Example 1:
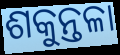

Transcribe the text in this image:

ଶକୁନ୍ତଳା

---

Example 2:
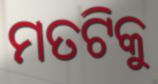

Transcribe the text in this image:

ମତଟିକୁ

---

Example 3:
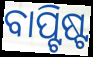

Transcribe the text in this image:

ବାପ୍ଟିଷ୍ଟ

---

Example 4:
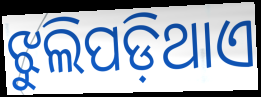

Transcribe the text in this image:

ଝୁଲିପଡ଼ିଥାଏ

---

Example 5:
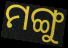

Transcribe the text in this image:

ମଙ୍ଗୁ